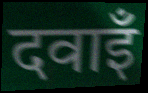
दवाइँ